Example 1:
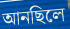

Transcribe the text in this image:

আনছিলে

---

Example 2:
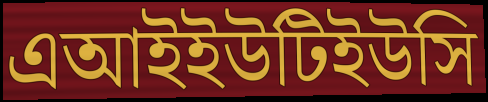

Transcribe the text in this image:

এআইইউটিইউসি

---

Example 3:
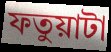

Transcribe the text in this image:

ফতুয়াটা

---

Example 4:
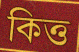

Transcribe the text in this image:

কিত্ত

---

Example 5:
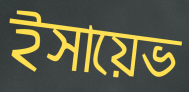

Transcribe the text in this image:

ইসায়েভ